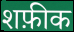
शफ़ीक